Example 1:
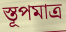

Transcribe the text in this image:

স্তূপমাত্র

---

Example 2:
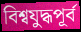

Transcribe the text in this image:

বিশ্বযুদ্ধপূর্ব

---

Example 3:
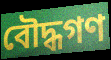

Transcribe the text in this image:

বৌদ্ধগণ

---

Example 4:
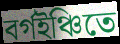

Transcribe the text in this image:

বর্গইঞ্চিতে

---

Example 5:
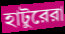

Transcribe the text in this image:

হাটুরেরা